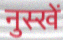
नुस्खें